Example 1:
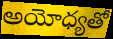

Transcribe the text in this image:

అయోధ్యతో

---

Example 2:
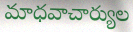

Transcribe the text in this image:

మాధవాచార్యుల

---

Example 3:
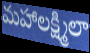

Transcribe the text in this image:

మహాలక్ష్మిలా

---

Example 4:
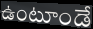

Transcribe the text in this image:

ఉంటూండే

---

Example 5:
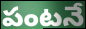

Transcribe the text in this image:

పంటనే